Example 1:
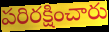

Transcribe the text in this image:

పరిరక్షించారు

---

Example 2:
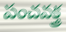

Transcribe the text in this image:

పంచవక్త్ర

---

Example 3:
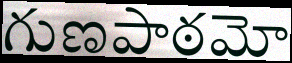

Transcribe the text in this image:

గుణపాఠమో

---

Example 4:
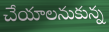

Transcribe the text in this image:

చేయాలనుకున్న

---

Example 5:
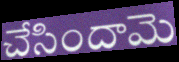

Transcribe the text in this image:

చేసిందామె